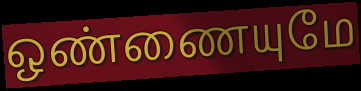
ஒண்ணையுமே